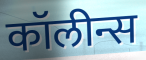
कॉलीन्स